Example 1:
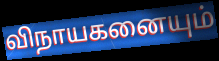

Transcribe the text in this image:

விநாயகனையும்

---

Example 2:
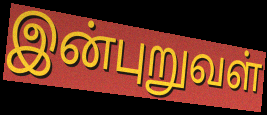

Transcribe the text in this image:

இன்புறுவள்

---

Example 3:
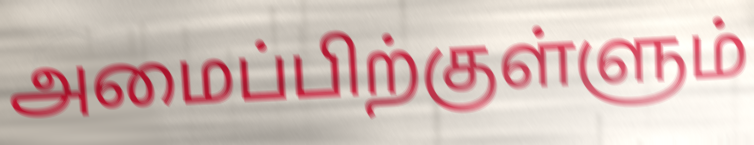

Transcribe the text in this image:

அமைப்பிற்குள்ளும்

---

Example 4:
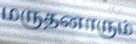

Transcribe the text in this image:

மருதனாரும்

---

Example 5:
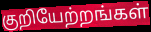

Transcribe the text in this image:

குறியேற்றங்கள்